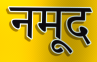
नमूद